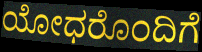
ಯೋಧರೊಂದಿಗೆ